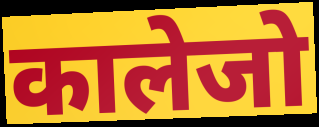
कालेजो